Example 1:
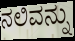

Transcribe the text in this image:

ನಲಿವನ್ನು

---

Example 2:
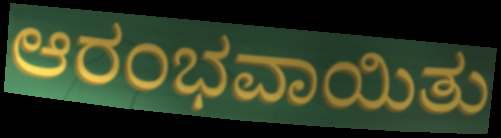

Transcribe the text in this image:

ಆರಂಭವಾಯಿತು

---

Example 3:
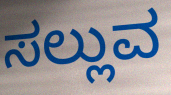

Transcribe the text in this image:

ಸಲ್ಲುವ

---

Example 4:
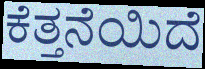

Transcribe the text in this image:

ಕೆತ್ತನೆಯಿದೆ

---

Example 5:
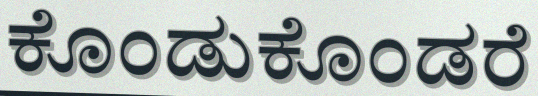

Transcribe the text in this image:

ಕೊಂಡುಕೊಂಡರೆ